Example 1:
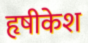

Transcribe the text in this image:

हृषीकेश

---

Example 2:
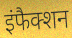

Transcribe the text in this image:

इंफैक्शन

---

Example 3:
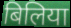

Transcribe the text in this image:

बिलिया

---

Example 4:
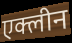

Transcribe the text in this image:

एक्लीन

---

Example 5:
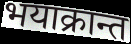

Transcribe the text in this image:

भयाक्रान्त